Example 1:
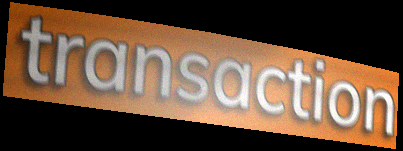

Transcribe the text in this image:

transaction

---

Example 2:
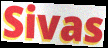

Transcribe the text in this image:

Sivas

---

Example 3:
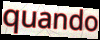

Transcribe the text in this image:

quando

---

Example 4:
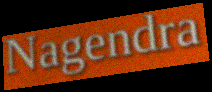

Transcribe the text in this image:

Nagendra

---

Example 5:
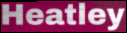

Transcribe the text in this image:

Heatley